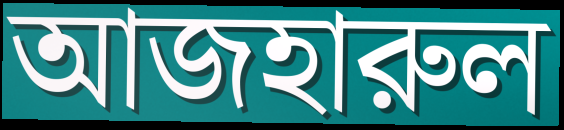
আজহারুল